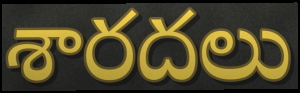
శారదలు